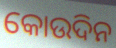
କୋଉଦିନ